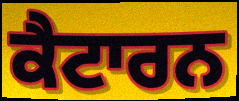
ਕੈਟਾਰਨ